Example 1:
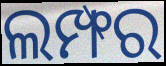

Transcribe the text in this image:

ଲମ୍ଫର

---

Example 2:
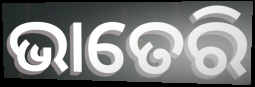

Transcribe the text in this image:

ଭାତେରି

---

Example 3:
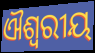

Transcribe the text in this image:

ଐଶ୍ୱରୀୟ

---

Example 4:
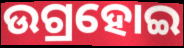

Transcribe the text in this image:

ଉଗ୍ରହୋଇ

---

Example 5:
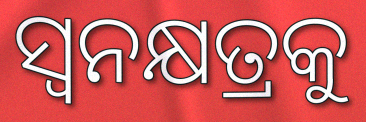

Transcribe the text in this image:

ସ୍ୱନକ୍ଷତ୍ରକୁ